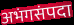
अभंगसंपदा